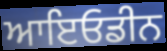
ਆਇਓਡੀਨ